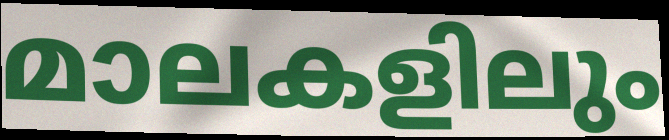
മാലകളിലും